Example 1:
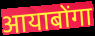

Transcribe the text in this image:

आयाबोंगा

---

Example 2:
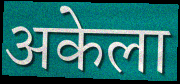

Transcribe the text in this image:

अकेला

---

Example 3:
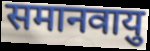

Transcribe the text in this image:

समानवायु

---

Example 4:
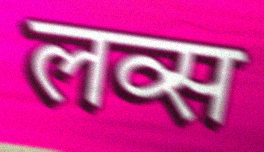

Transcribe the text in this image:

लव्स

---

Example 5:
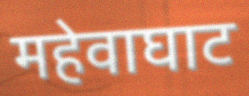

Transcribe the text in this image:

महेवाघाट